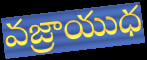
వజ్రాయుధ